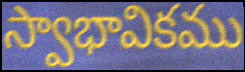
స్వాభావికము